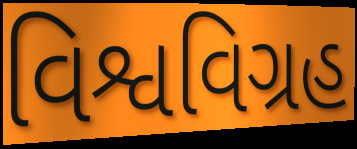
વિશ્વવિગ્રહ